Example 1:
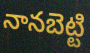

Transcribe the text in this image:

నానబెట్టి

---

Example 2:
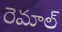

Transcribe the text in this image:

రెమాల్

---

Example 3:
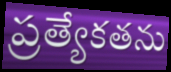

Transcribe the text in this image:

ప్రత్యేకతను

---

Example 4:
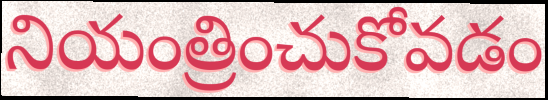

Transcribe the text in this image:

నియంత్రించుకోవడం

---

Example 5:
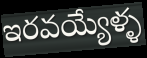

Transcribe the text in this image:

ఇరవయ్యేళ్ళ